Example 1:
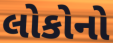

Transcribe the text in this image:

લોકોનો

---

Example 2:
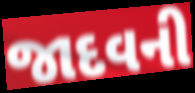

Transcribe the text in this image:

જાદવની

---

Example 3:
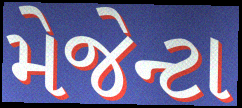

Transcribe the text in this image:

મેજેન્ટા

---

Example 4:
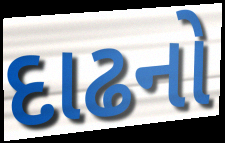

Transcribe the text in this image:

દાઢનો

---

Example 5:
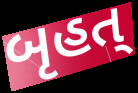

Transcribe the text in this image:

બૃહત્